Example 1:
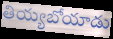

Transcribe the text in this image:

తియ్యబోయాడు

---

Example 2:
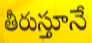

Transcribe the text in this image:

తీరుస్తూనే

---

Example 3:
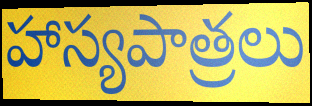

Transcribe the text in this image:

హాస్యపాత్రలు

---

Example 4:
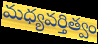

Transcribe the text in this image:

మధ్యవర్తిత్వం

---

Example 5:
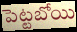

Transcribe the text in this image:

పెట్టబోయి